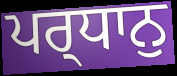
ਪਰ੍ਧਾਨੁ